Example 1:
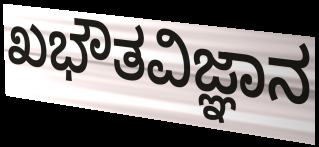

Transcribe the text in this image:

ಖಭೌತವಿಜ್ಞಾನ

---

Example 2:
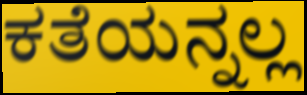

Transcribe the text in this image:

ಕತೆಯನ್ನಲ್ಲ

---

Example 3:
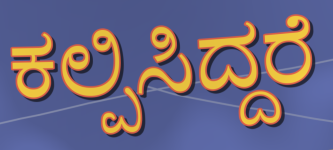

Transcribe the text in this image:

ಕಲ್ಪಿಸಿದ್ದರೆ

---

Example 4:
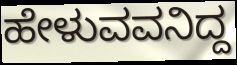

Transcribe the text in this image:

ಹೇಳುವವನಿದ್ದ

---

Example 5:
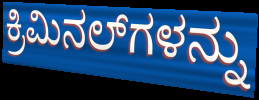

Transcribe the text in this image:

ಕ್ರಿಮಿನಲ್‍ಗಳನ್ನು